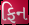
ફિન